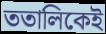
ততালিকেই